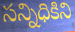
సన్నిధికిని